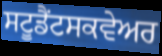
ਸਟੂਡੈਂਟਸਕਵੇਅਰ